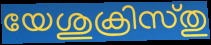
യേശുക്രിസ്തു